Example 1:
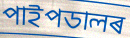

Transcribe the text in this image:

পাইপডালৰ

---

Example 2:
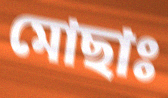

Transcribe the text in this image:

মোছাঃ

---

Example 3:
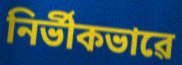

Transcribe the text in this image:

নিৰ্ভীকভাৱে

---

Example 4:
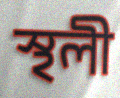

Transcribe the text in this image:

স্থলী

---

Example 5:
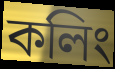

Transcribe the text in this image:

কলিং